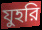
যুহরি